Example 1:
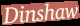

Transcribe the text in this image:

Dinshaw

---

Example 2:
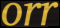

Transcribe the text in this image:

orr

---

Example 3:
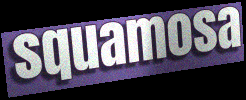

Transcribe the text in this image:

squamosa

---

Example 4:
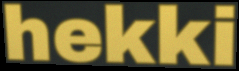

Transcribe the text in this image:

hekki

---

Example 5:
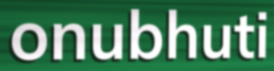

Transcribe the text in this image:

onubhuti